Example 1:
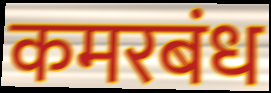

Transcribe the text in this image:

कमरबंध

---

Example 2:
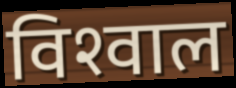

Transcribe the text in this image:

विश्वाल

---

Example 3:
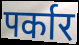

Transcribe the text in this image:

पर्कार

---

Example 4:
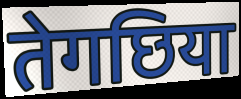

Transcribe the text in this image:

तेगछिया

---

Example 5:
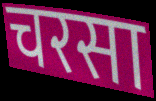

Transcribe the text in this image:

चरसा